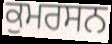
ਕੁਮਰਸਨ